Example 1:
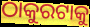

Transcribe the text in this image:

ଠାକୁରଟାକୁ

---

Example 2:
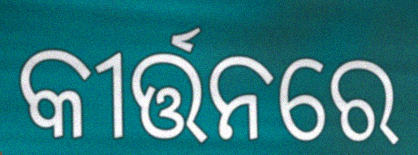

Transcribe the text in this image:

କୀର୍ତ୍ତନରେ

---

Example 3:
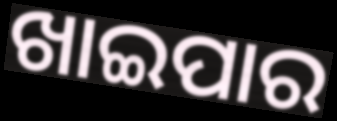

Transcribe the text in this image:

ଖାଇପାର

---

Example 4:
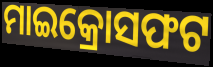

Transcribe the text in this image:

ମାଇକ୍ରୋସଫଟ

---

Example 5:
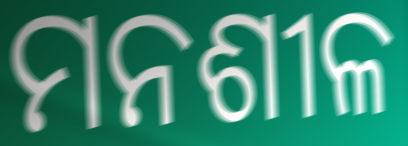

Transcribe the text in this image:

ମନଶୀଳ